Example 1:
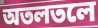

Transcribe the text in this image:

অতলতলে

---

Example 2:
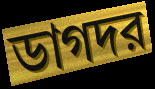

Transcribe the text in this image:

ডাগদর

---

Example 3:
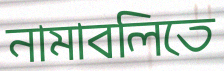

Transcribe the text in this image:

নামাবলিতে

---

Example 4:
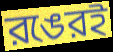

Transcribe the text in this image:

রঙেরই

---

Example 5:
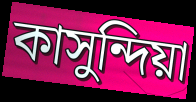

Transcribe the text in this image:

কাসুন্দিয়া